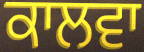
ਕਾਲਵਾ